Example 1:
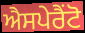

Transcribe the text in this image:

ਐਸਪੇਰੈਂਟੋ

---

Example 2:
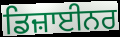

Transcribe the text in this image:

ਡਿਜ਼ਾਈਨਰ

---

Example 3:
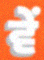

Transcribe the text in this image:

ਵੇਂ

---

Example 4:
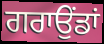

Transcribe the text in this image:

ਗਰਾਉਂਡਾਂ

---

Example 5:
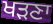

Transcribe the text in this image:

ਖੜਣਾ